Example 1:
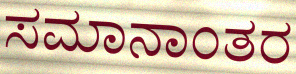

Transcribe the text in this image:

ಸಮಾನಾಂತರ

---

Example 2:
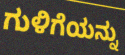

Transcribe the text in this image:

ಗುಳಿಗೆಯನ್ನು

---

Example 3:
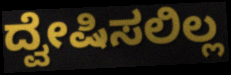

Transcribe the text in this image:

ದ್ವೇಷಿಸಲಿಲ್ಲ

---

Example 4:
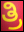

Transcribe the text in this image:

ತ್ರಿ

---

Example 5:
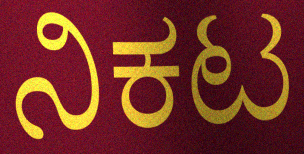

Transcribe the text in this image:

ನಿಕಟ